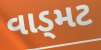
વાડ્મટ